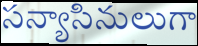
సన్యాసినులుగా